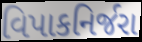
વિપાકનિર્જરા